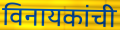
विनायकांची